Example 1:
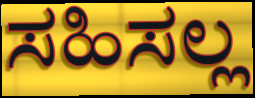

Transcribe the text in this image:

ಸಹಿಸಲ್ಲ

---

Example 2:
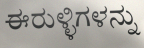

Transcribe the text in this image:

ಈರುಳ್ಳಿಗಳನ್ನು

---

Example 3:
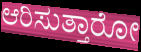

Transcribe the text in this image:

ಆರಿಸುತ್ತಾರೋ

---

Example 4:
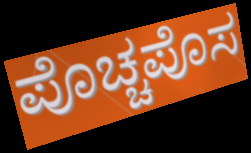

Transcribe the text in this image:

ಪೊಚ್ಚಪೊಸ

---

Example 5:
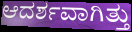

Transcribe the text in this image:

ಆದರ್ಶವಾಗಿತ್ತು